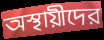
অস্থায়ীদের